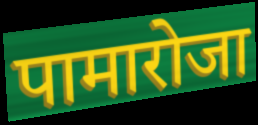
पामारोजा